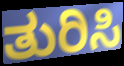
ತುರಿಸಿ